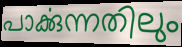
പാൎക്കുന്നതിലും